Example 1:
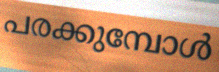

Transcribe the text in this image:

പരക്കുമ്പോൾ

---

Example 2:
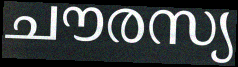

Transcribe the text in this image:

ചൗരസ്യ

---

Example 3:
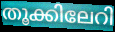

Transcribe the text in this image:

തൂക്കിലേറി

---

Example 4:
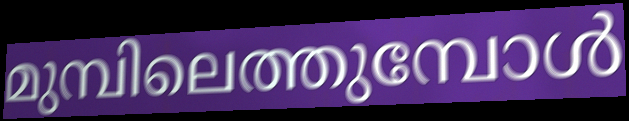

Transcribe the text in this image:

മുമ്പിലെത്തുമ്പോൾ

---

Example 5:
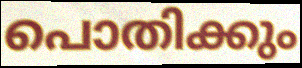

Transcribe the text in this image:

പൊതിക്കും